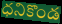
ధనికొండ